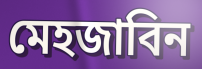
মেহজাবিন